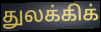
துலக்கிக்